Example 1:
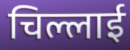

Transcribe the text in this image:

चिल्लाई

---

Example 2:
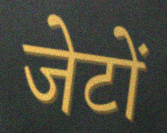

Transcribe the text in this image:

जेटों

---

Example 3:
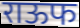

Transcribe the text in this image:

राऊफ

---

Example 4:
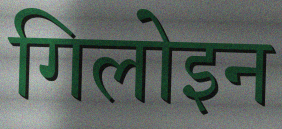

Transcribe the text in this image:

गिलोइन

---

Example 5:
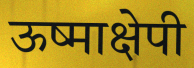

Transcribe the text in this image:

ऊष्माक्षेपी